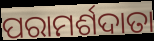
ପରାମର୍ଶଦାତା